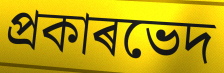
প্ৰকাৰভেদ